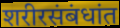
शरीरसंबंधांत